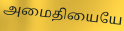
அமைதியையே